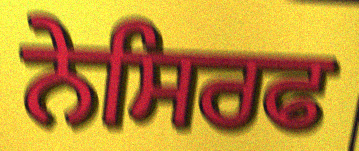
ਨੇਸਿਰਫ